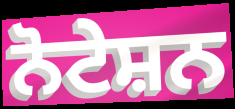
ਨੋਟੇਸ਼ਨ